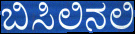
ಬಿಸಿಲಿನಲಿ